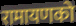
रामायणको